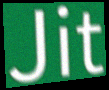
Jit